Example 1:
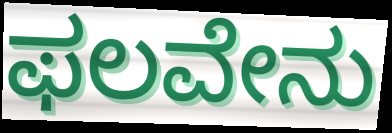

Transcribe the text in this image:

ಫಲವೇನು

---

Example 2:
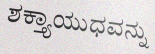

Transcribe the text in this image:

ಶಕ್ತ್ಯಾಯುಧವನ್ನು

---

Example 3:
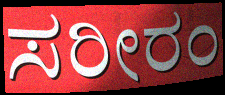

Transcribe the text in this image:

ಸರೀರಂ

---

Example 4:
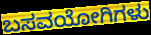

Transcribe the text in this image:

ಬಸವಯೋಗಿಗಳು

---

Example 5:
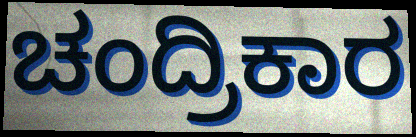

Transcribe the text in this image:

ಚಂದ್ರಿಕಾರ